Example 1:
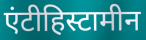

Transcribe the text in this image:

एंटीहिस्टामीन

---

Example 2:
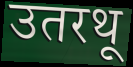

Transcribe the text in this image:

उतरथू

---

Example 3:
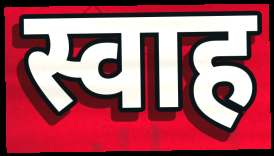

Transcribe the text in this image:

स्वाह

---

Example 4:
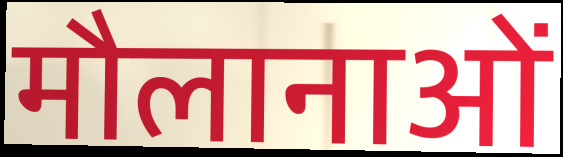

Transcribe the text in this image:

मौलानाओं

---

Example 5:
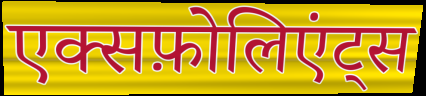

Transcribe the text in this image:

एक्सफ़ोलिएंट्स